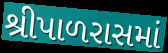
શ્રીપાળરાસમાં